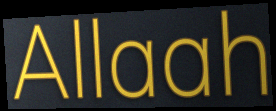
Allaah